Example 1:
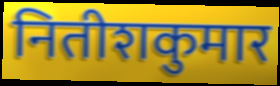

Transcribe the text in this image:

नितीशकुमार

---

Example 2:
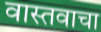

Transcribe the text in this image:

वास्तवाचा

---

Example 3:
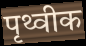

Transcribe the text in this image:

पृथ्वीक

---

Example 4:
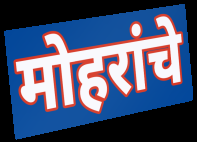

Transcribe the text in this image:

मोहरांचे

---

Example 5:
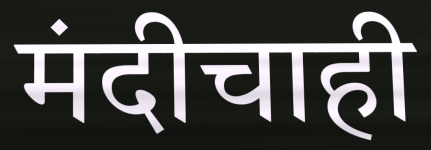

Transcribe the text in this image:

मंदीचाही